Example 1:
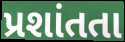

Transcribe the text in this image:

પ્રશાંતતા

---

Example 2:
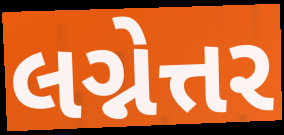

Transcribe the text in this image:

લગ્નેત્તર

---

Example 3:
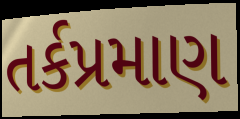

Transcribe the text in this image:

તર્કપ્રમાણ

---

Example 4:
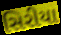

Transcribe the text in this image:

સિરીયા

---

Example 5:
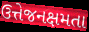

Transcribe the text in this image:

ઉત્તેજનક્ષમતા